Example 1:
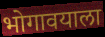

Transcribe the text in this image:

भोगावयाला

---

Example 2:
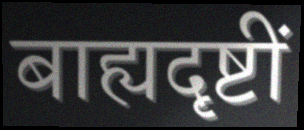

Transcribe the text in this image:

बाह्यदृष्टीं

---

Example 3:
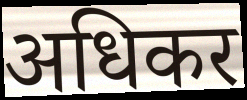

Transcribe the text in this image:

अधिकर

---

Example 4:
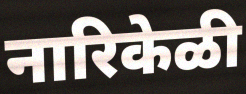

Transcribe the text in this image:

नारिकेळी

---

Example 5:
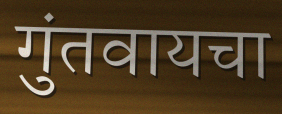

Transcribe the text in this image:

गुंतवायचा